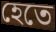
হেতে